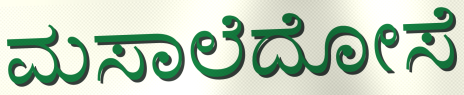
ಮಸಾಲೆದೋಸೆ